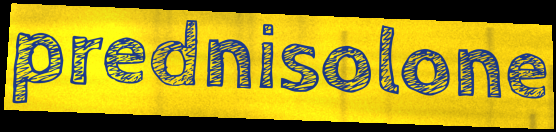
prednisolone